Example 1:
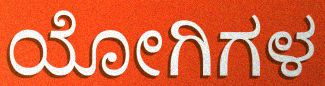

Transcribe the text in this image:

ಯೋಗಿಗಳ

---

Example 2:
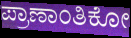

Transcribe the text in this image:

ಪ್ರಾಣಾಂತಿಕೋ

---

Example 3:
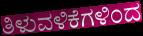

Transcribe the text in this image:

ತಿಳುವಳಿಕೆಗಳಿಂದ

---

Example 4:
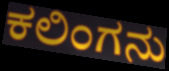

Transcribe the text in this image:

ಕಲಿಂಗನು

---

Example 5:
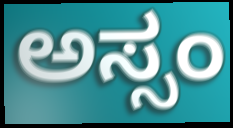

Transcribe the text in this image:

ಅಸ್ಸಂ